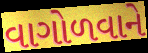
વાગોળવાને